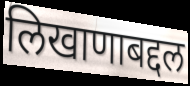
लिखाणाबद्दल